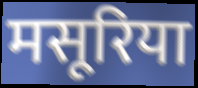
मसूरिया